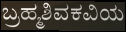
ಬ್ರಹ್ಮಶಿವಕವಿಯ